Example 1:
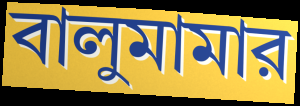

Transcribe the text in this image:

বালুমামার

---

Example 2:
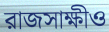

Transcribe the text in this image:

রাজসাক্ষীও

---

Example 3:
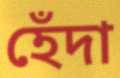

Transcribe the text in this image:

হেঁদা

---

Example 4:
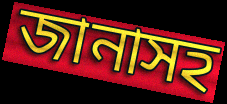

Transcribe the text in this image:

জানাসহ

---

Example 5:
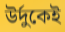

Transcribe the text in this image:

উর্দুকেই